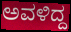
ಅವಳಿದ್ದ